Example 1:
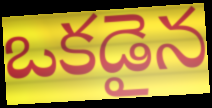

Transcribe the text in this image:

ఒకడైన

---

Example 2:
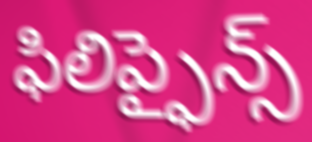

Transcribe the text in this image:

ఫిలిప్ఫైన్స్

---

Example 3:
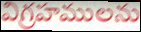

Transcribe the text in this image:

విగ్రహములను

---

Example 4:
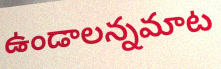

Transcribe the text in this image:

ఉండాలన్నమాట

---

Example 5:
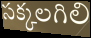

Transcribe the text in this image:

సక్కలగిలి